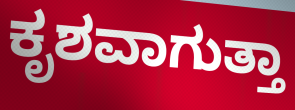
ಕೃಶವಾಗುತ್ತಾ